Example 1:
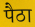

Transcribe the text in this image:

पैठा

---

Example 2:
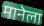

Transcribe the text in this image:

मानेला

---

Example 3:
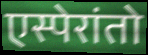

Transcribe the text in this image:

एस्पेरांतो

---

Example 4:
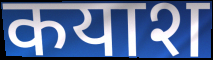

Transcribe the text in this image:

कयाश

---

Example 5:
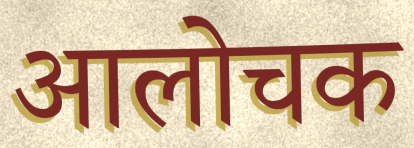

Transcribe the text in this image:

आलोचक